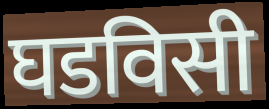
घडविसी